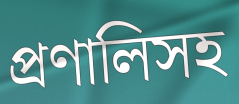
প্রণালিসহ